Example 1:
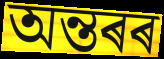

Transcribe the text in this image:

অন্তৰৰ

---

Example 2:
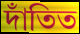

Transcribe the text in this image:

দাঁতিত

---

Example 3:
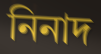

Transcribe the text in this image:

নিনাদ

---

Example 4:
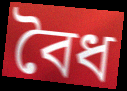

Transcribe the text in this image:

বৈধ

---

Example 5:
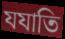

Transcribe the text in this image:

যযাতি